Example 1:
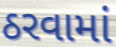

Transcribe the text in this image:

ઠરવામાં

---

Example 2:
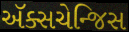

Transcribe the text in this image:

ઍક્સચેન્જિસ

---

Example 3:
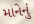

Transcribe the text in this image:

માનેનું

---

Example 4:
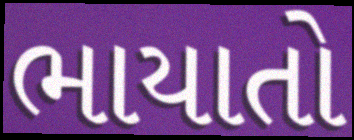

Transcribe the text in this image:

ભાયાતો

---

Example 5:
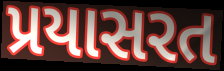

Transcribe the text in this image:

પ્રયાસરત